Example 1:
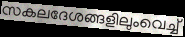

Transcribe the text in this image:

സകലദേശങ്ങളിലുംവെച്ച്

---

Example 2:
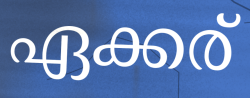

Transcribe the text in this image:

ഏക്കര്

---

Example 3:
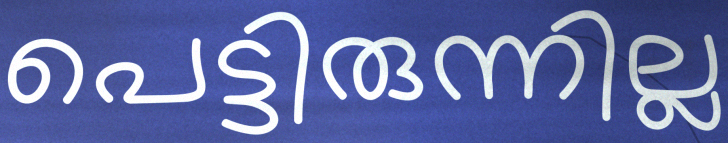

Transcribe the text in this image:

പെട്ടിരുന്നില്ല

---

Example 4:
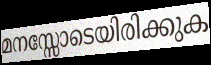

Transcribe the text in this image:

മനസ്സോടെയിരിക്കുക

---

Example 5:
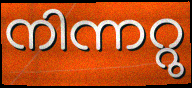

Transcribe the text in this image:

നിന്നറ്റു